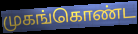
முகங்கொண்ட